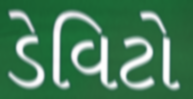
ડેવિટો